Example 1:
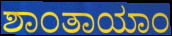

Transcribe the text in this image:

ಶಾಂತಾಯಾಂ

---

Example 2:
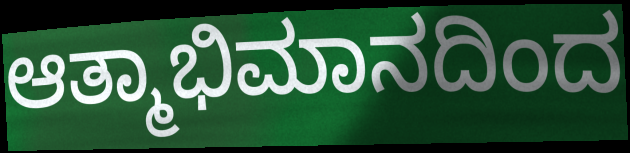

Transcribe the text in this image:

ಆತ್ಮಾಭಿಮಾನದಿಂದ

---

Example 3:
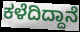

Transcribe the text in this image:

ಕಳೆದಿದ್ದಾನೆ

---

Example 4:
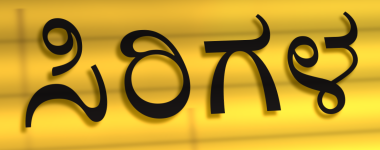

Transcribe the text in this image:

ಸಿರಿಗಳ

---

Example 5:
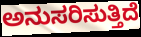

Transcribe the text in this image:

ಅನುಸರಿಸುತ್ತಿದೆ